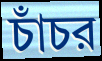
চাঁচর